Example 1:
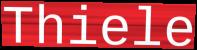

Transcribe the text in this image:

Thiele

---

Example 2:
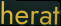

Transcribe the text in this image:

herat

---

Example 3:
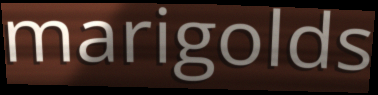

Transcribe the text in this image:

marigolds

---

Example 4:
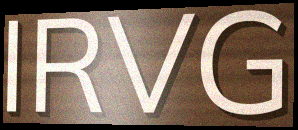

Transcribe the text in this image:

IRVG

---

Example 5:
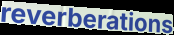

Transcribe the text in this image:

reverberations